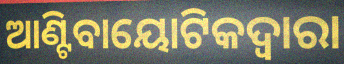
ଆଣ୍ଟିବାୟୋଟିକଦ୍ୱାରା